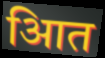
आित